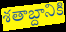
శతాబ్దానికి